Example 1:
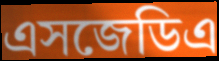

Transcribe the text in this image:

এসজেডিএ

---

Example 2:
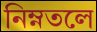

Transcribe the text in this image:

নিম্নতলে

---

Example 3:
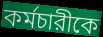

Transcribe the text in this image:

কর্মচারীকে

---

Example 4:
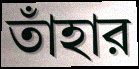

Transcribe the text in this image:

তাঁহার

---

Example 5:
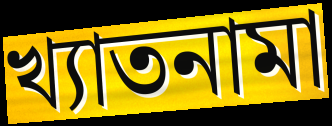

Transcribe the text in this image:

খ্যাতনামা